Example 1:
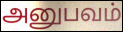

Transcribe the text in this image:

அனுபவம்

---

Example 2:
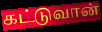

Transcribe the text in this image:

கட்டுவான்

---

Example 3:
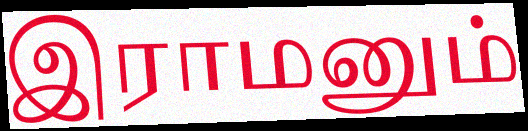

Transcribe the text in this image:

இராமனும்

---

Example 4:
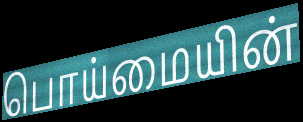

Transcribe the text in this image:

பொய்மையின்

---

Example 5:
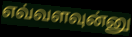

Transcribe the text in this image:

எவ்வளவுன்னு